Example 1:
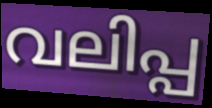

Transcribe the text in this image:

വലിപ്പ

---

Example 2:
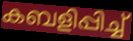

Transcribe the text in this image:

കബളിപ്പിച്ച്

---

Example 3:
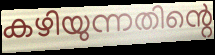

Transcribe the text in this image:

കഴിയുന്നതിന്റെ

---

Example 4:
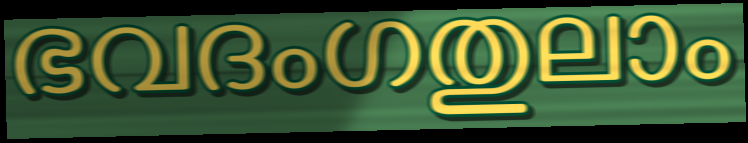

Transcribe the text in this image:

ഭവദംഗതുലാം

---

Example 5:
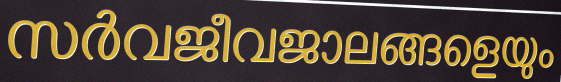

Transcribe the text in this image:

സർവജീവജാലങ്ങളെയും